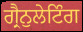
ਗ੍ਰੈਨੁਲੇਟਿੰਗ